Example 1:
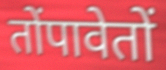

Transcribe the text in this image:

तोंपावेतों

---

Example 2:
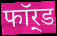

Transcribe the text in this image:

फॉर्ड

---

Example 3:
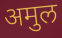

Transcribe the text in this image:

अमुल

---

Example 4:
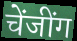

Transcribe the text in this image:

चेंजींग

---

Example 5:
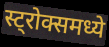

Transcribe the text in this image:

स्ट्रोक्समध्ये